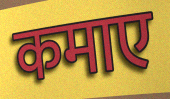
कमाए